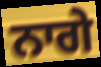
ਨਾਗੇ